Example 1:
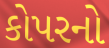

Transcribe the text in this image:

કોપરનો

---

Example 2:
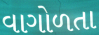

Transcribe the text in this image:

વાગોળતા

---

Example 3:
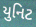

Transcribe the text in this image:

યુનિટ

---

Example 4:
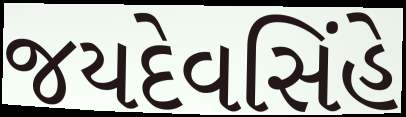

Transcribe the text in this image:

જયદેવસિંહે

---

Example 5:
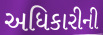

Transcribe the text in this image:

અધિકારીની